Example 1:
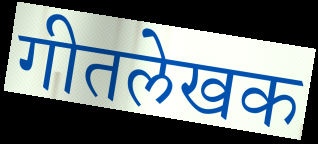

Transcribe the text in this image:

गीतलेखक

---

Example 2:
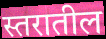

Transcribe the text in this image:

स्तरातील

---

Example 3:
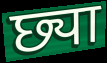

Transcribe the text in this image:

छ्या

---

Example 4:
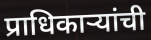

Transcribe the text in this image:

प्राधिकाऱ्यांची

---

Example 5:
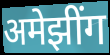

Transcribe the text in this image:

अमेझींग